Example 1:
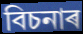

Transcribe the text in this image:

বিচনাৰ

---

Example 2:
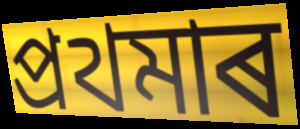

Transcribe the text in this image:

প্ৰথমাৰ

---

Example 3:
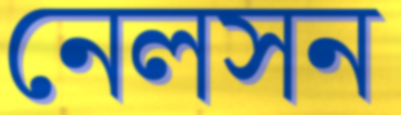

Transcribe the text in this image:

নেলসন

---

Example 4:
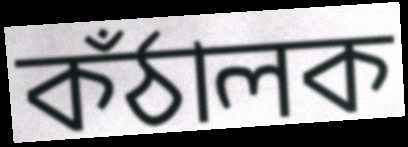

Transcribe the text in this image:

কঁঠালক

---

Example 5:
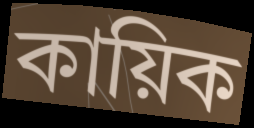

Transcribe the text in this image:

কায়িক